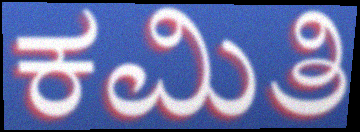
ಕಮಿತಿ